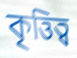
কৃত্তিত্ব